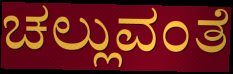
ಚಲ್ಲುವಂತೆ